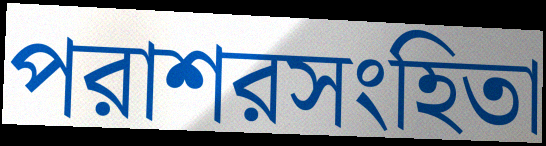
পরাশরসংহিতা